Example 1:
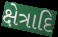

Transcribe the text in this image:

ક્ષેત્રાદિ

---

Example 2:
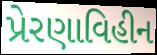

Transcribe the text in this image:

પ્રેરણાવિહીન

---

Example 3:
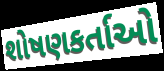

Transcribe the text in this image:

શોષણકર્તાઓ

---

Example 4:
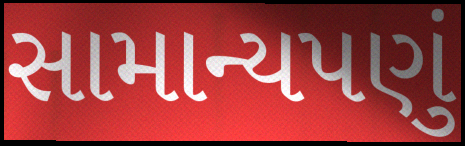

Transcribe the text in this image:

સામાન્યપણું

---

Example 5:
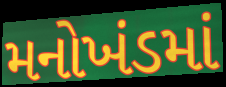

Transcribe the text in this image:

મનોખંડમાં